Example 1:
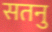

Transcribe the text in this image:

सतनु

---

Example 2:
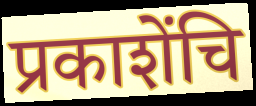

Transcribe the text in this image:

प्रकाशेंचि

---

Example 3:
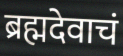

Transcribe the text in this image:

ब्रह्मदेवाचं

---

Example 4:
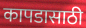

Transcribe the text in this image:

कापडासाठी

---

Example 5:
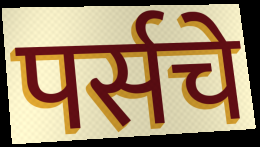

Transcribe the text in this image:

पर्सचे